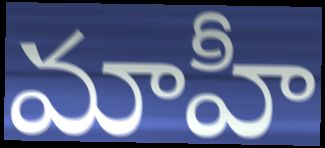
మాహీ